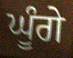
ਘੂੰਗੇ